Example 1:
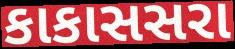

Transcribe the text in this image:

કાકાસસરા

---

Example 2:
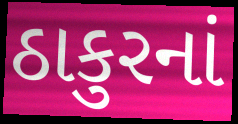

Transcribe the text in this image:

ઠાકુરનાં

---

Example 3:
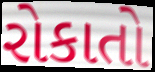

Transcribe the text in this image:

રોકાતો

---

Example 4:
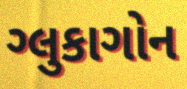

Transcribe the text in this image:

ગ્લુકાગોન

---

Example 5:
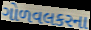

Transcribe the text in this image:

ગોળવલકરના